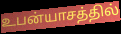
உபன்யாசத்தில்